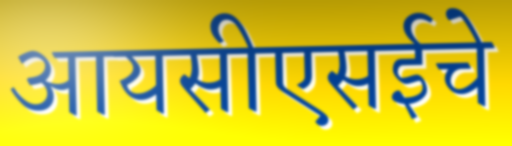
आयसीएसईचे